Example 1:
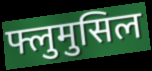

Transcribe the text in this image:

फ्लुमुसिल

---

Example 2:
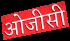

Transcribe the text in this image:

ओजीसी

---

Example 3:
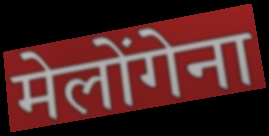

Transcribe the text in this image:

मेलोंगेना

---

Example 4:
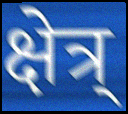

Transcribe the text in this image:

क्षेत्र्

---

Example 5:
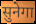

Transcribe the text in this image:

सुनेगा